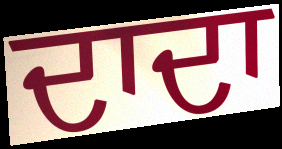
ਦਾਦਾ